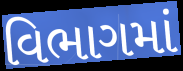
વિભાગમાં